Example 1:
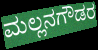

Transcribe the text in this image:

ಮಲ್ಲನಗೌಡರ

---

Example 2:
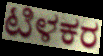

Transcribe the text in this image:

ಟಿಳಕರ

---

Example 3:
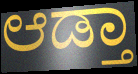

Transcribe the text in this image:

ಆಡ್ತಾ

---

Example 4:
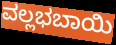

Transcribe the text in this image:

ವಲ್ಲಭಬಾಯಿ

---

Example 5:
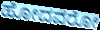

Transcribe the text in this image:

ಹೋದವರೋ